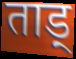
ताड्